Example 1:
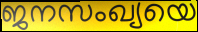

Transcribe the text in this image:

ജനസംഖ്യയെ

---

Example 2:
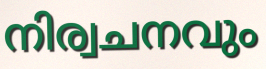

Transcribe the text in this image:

നിര്വചനവും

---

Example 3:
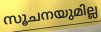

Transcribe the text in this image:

സൂചനയുമില്ല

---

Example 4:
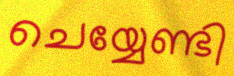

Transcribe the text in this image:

ചെയ്യേണ്ടി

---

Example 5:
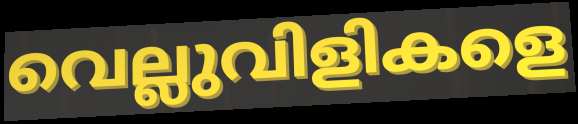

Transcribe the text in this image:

വെല്ലുവിളികളെ